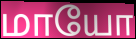
மாயோ